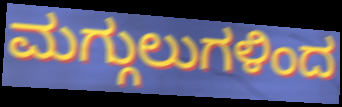
ಮಗ್ಗುಲುಗಳಿಂದ